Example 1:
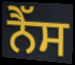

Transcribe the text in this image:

ਨੈੱਸ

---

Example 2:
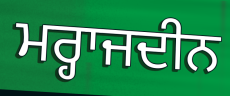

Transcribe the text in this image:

ਮਰ੍ਹਾਜਦੀਨ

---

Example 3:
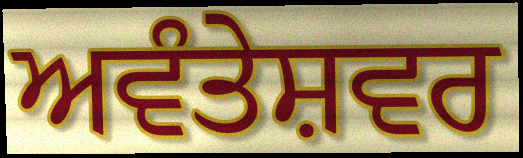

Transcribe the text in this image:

ਅਵੰਤੇਸ਼ਵਰ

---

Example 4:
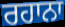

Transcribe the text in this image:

ਰਹਾਨਾ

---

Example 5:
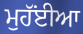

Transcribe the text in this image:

ਮੁਹੱਂਈਆ